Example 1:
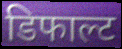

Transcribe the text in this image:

डिफाल्ट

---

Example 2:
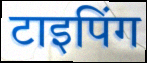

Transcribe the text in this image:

टाइपिंग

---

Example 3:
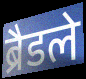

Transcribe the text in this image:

ब्रैडले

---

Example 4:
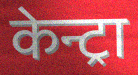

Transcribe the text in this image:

केन्ट्रा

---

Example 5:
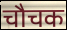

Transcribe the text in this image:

चौचक